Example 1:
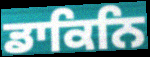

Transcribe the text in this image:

ਡਾਕਿਨਿ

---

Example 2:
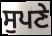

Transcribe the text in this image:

ਸੁਪਣੇ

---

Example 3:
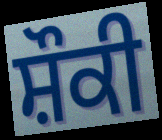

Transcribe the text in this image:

ਸ਼ੌਕੀ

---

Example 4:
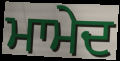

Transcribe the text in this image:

ਮਾਮੇਦ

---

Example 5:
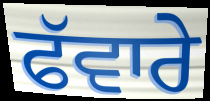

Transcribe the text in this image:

ਫੱਵਾਰੇ